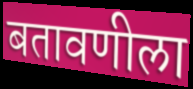
बतावणीला